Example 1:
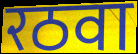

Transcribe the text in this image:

रठवा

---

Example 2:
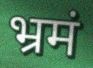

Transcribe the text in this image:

भ्रमं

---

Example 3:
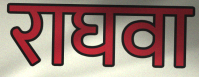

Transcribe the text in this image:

राघवा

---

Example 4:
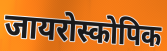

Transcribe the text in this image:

जायरोस्कोपिक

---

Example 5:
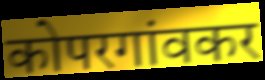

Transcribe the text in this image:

कोपरगांवकर